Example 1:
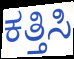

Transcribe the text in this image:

ಕತ್ತಿಸಿ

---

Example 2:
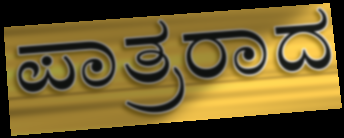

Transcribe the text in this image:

ಪಾತ್ರರಾದ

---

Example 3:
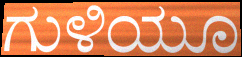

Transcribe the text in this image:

ಗುಳಿಯೂ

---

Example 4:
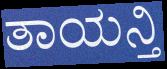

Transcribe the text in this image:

ತಾಯನ್ತಿ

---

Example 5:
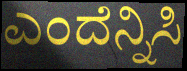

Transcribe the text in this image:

ಎಂದೆನ್ನಿಸಿ